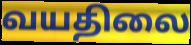
வயதிலை